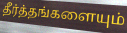
தீர்த்தங்களையும்